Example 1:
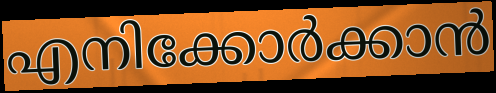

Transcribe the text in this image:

എനിക്കോർക്കാൻ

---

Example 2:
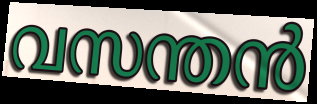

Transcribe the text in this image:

വസന്തൻ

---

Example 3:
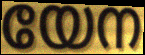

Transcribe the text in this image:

യേന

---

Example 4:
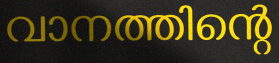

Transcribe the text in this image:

വാനത്തിന്റെ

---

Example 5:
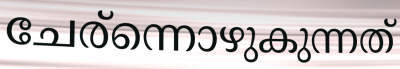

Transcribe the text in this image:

ചേര്ന്നൊഴുകുന്നത്